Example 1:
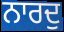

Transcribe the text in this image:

ਨਾਰਦੁ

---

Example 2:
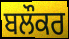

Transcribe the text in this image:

ਬਲੌਕਰ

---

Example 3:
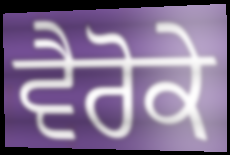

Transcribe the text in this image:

ਵੈਰੋਕੇ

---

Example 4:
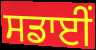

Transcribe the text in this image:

ਸਡਾਈਂ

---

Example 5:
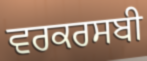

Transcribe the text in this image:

ਵਰਕਰਸਬੀ